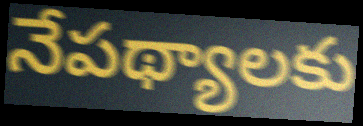
నేపథ్యాలకు